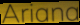
Ariana